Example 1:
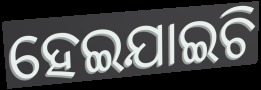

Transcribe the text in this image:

ହେଇଯାଇଚି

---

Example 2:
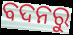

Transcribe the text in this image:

ବଦନରୁ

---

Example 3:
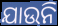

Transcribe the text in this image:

ଯାଉନି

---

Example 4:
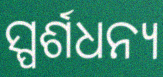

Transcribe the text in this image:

ସ୍ପର୍ଶଧନ୍ୟ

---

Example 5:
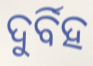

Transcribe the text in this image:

ଦୁର୍ବିହ